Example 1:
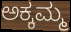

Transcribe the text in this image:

ಅಕ್ಕಮ್ಮ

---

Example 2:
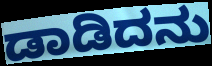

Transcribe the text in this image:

ಡಾಡಿದನು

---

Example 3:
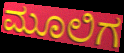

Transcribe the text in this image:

ಮೂಲಿಗ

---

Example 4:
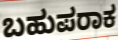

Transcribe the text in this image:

ಬಹುಪರಾಕ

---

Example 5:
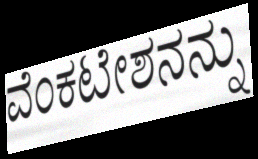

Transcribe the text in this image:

ವೆಂಕಟೇಶನನ್ನು